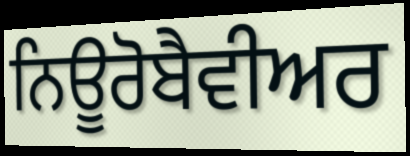
ਨਿਊਰੋਬੈਵੀਅਰ